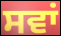
ਸਵਾਂ